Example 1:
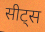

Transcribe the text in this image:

सीट्स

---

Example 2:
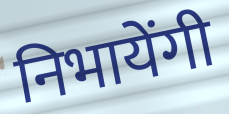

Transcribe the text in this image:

निभायेंगी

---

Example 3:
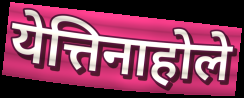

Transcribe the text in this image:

येत्तिनाहोले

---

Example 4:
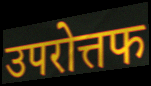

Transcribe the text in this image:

उपरोत्तफ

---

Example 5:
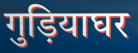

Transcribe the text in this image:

गुड़ियाघर